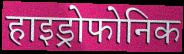
हाइड्रोफोनिक